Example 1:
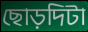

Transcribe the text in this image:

ছোড়দিটা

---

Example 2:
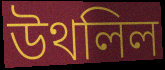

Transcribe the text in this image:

উথলিল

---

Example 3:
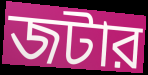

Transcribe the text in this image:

জটার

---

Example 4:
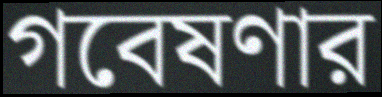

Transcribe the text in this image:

গবেষণার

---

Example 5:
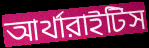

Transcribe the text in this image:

আর্থারাইটিস